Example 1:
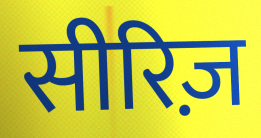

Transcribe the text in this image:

सीरिज़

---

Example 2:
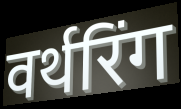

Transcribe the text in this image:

वर्थरिंग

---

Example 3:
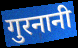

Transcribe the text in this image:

गुरनानी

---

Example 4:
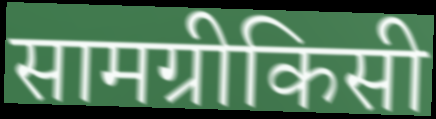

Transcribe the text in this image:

सामग्रीकिसी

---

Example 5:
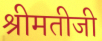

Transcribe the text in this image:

श्रीमतीजी